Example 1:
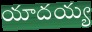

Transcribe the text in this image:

యాదయ్య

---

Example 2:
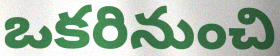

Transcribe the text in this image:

ఒకరినుంచి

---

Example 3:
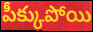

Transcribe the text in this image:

పీక్కుపోయి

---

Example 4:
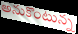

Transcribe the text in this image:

అనుకొంటున్న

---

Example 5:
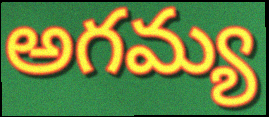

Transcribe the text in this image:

అగమ్య